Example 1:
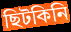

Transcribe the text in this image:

ছিটকিনি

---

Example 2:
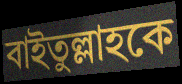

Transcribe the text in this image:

বাইতুল্লাহকে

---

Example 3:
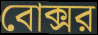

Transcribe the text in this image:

বোক্সর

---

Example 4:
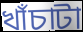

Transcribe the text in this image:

খাঁচাটা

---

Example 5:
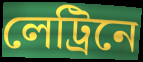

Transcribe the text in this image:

লেট্রিনে